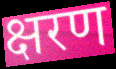
क्षरण